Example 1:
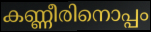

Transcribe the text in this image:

കണ്ണീരിനൊപ്പം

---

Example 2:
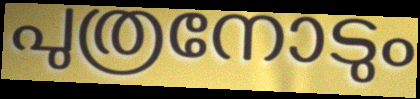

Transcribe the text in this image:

പുത്രനോടും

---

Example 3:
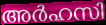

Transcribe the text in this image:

അർഹസി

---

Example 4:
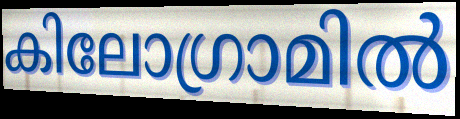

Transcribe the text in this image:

കിലോഗ്രാമിൽ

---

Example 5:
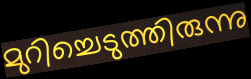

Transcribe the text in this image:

മുറിച്ചെടുത്തിരുന്നു